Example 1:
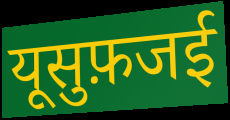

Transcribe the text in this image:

यूसुफ़जई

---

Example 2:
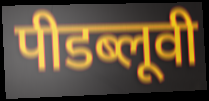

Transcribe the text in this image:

पीडब्लूवी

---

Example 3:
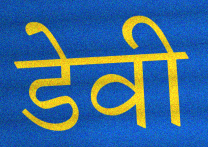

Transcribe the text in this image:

डेवी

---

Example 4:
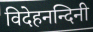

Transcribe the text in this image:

विदेहनन्दिनी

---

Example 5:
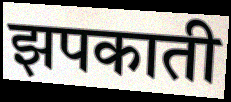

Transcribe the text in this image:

झपकाती